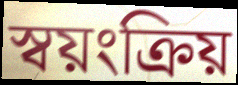
স্বয়ংক্রিয়